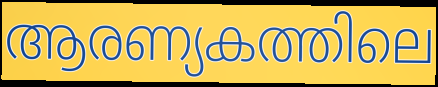
ആരണ്യകത്തിലെ